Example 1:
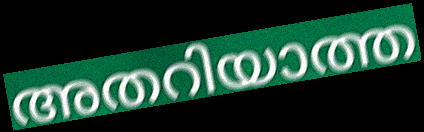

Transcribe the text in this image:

അതറിയാത്ത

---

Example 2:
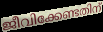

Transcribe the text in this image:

ജീവിക്കേണ്ടതിന്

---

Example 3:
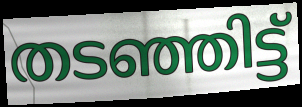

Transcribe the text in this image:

തടഞ്ഞിട്ട്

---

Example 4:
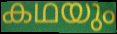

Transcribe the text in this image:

കഥയും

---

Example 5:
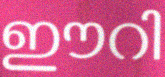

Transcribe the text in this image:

ഈറി